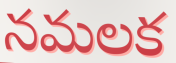
నమలక